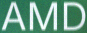
AMD